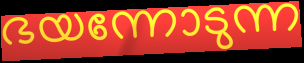
ഭയന്നോടുന്ന